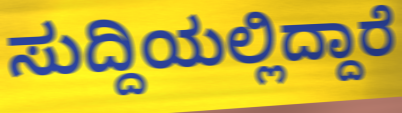
ಸುದ್ದಿಯಲ್ಲಿದ್ದಾರೆ